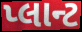
પ્લાન્ટ